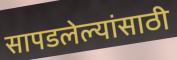
सापडलेल्यांसाठी